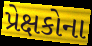
પ્રેક્ષકોના